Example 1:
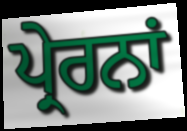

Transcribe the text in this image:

ਪ੍ਰੇਰਨਾਂ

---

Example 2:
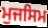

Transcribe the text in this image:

ਮੁਜਸਿਮ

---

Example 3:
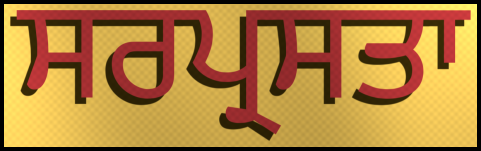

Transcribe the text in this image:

ਸਰਪ੍ਰਸਤਾ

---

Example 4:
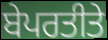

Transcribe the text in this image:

ਬੇਪਰਤੀਤੇ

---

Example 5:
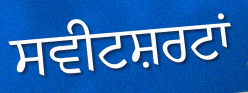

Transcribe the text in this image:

ਸਵੀਟਸ਼ਰਟਾਂ